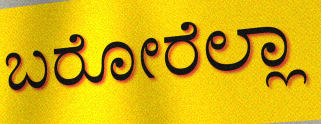
ಬರೋರೆಲ್ಲಾ